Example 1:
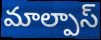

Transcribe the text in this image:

మాల్పాస్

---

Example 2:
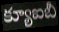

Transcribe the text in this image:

క్యూఐబీ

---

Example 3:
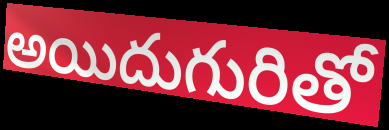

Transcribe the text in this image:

అయిదుగురితో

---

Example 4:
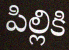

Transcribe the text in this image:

పిల్లికి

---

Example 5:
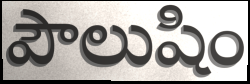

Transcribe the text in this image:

పౌలుషిం